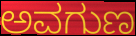
ಅವಗುಣ